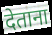
देताना